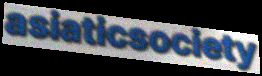
asiaticsociety